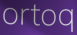
ortoq